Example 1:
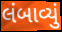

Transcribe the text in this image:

લંબાવ્યું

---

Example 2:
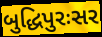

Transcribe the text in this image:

બુદ્ધિપુરઃસર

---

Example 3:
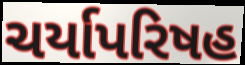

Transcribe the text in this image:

ચર્યાપરિષહ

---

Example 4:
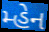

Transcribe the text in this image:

મ્હેન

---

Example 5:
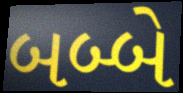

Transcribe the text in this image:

બબ્બે